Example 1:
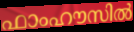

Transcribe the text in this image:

ഫാംഹൗസിൽ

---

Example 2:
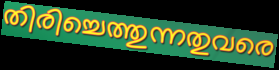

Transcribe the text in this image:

തിരിച്ചെത്തുന്നതുവരെ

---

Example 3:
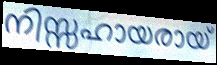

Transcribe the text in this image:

നിസ്സഹായരായ്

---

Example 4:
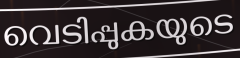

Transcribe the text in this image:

വെടിപ്പുകയുടെ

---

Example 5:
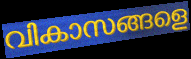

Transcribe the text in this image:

വികാസങ്ങളെ